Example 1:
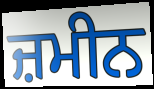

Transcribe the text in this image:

ਜ਼ਮੀਨ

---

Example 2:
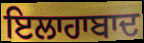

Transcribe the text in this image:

ਇਲਾਹਾਬਾਦ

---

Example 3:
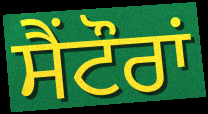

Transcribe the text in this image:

ਸੈਂਟੌਰਾਂ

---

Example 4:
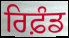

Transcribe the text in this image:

ਰਿਫ਼ੰਡ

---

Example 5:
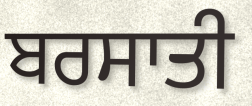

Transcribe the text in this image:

ਬਰਸਾਤੀ